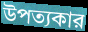
উপত্যকার